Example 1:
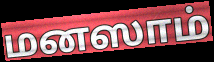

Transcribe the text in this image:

மனஸாம்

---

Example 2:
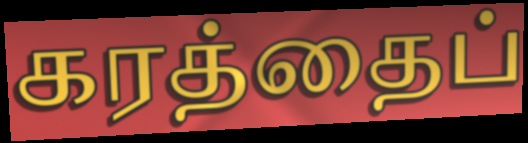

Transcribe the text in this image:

கரத்தைப்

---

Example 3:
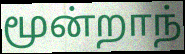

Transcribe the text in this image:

மூன்றாந்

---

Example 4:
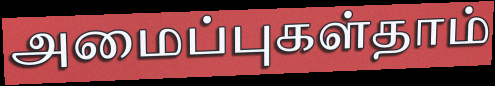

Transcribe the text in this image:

அமைப்புகள்தாம்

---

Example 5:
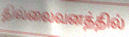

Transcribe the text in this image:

தில்லைவனத்தில்